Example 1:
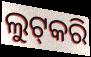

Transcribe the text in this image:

ଲୁଟ୍‌କରି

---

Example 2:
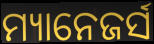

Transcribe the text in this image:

ମ୍ୟାନେଜର୍ସ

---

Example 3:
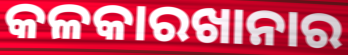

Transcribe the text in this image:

କଳକାରଖାନାର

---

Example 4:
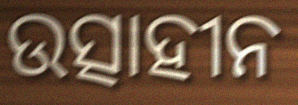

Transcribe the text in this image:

ଉତ୍ସାହୀନ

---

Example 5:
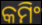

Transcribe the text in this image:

କମିଂ